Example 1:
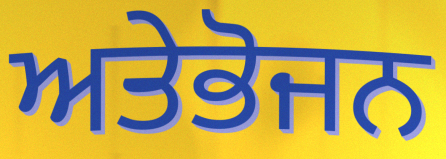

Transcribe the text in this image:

ਅਤੇਭੋਜਨ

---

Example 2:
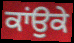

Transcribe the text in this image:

ਕਾਂਉਕੇ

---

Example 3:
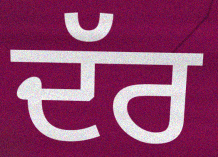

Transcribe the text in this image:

ਦੱਰ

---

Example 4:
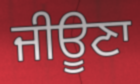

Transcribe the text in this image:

ਜੀਊਣਾ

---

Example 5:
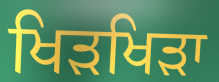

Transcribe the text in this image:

ਖਿੜਖਿੜਾ